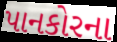
પાનકોરના